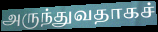
அருந்துவதாகச்